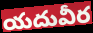
యదువీర